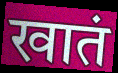
खातं